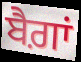
ਬੈਗ਼ਾਂ